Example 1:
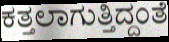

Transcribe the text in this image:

ಕತ್ತಲಾಗುತ್ತಿದ್ದಂತೆ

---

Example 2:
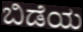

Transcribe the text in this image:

ಬಿಡೆಯ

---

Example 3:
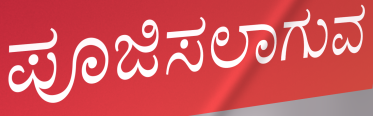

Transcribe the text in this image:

ಪೂಜಿಸಲಾಗುವ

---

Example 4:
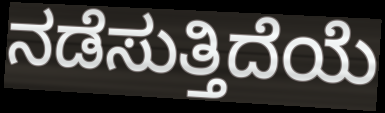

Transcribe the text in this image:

ನಡೆಸುತ್ತಿದೆಯೆ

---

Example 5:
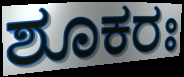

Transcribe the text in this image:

ಶೂಕರಃ